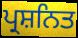
ਪ੍ਰਸ਼ਨਿਤ